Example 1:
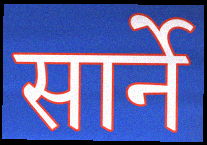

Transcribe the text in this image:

सार्ने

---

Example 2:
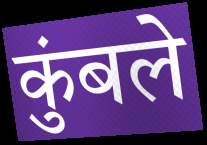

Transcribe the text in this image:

कुंबले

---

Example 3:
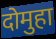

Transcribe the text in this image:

दोमुहा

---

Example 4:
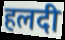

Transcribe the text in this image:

हलदी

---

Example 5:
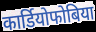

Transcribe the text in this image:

कार्डियोफोबिया